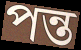
পন্ত